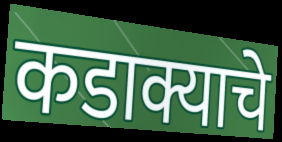
कडाक्याचे